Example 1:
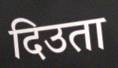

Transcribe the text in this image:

दिउता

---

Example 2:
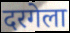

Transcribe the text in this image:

दरगेला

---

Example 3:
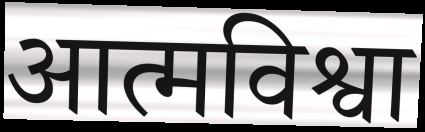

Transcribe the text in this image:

आत्मविश्वा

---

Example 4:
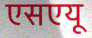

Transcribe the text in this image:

एसएयू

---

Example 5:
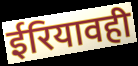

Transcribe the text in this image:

ईरियावही